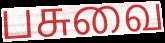
பசுவை